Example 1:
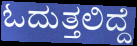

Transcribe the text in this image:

ಓದುತ್ತಲಿದ್ದೆ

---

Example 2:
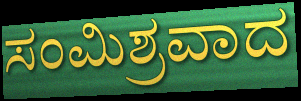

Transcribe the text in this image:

ಸಂಮಿಶ್ರವಾದ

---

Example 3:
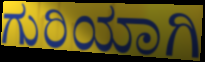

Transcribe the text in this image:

ಗುರಿಯಾಗಿ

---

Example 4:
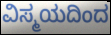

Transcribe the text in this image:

ವಿಸ್ಮಯದಿಂದ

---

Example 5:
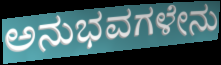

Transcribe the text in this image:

ಅನುಭವಗಳೇನು